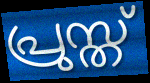
പ്രുസ്ത്